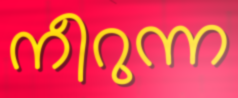
നീറുന്ന